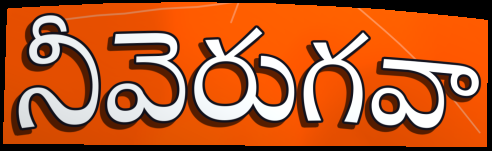
నీవెరుగవా